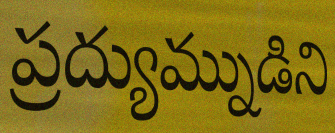
ప్రద్యుమ్నుడిని